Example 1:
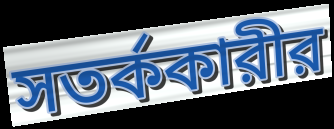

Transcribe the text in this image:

সতর্ককারীর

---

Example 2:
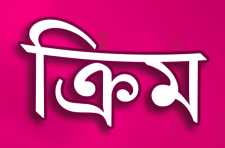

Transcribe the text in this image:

ক্রিম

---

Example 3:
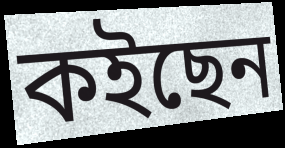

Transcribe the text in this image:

কইছেন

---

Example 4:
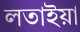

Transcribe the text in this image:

লতাইয়া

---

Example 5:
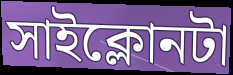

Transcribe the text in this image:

সাইক্লোনটা